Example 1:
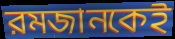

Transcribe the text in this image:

রমজানকেই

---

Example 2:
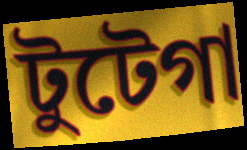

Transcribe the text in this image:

টুটেগা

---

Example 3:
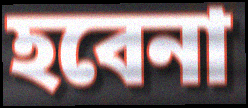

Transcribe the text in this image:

হবেনা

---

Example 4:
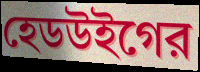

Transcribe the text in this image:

হেডউইগের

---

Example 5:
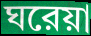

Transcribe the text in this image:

ঘরেয়া